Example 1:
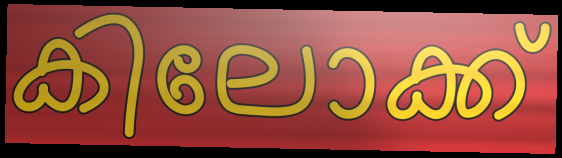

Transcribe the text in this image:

കിലോക്ക്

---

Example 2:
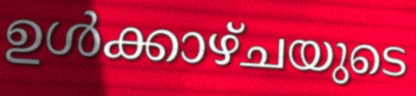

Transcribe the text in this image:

ഉൾക്കാഴ്ചയുടെ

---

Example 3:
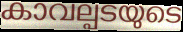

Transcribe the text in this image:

കാവല്പടയുടെ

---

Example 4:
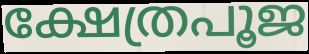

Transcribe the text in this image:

ക്ഷേത്രപൂജ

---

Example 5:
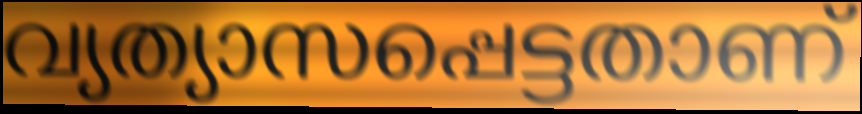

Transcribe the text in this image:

വ്യത്യാസപ്പെട്ടതാണ്